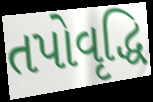
તપોવૃદ્ધિ